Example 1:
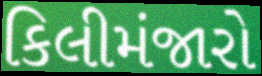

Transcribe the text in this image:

કિલીમંજારો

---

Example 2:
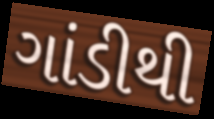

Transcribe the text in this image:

ગાંડીથી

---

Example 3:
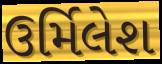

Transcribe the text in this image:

ઉર્મિલેશ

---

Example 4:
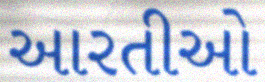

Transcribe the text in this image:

આરતીઓ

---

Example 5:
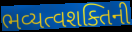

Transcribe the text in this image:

ભવ્યત્વશક્તિની